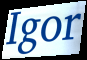
Igor